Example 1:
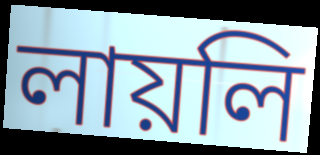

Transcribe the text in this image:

লায়লি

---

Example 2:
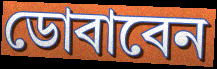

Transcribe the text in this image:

ডোবাবেন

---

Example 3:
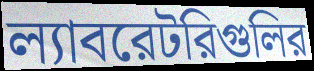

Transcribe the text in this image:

ল্যাবরেটরিগুলির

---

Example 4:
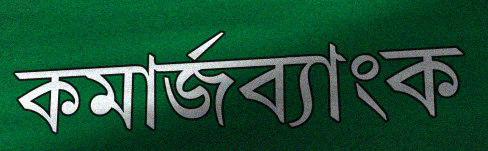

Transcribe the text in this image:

কমার্জব্যাংক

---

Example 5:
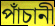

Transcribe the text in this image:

পাঁচানী